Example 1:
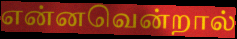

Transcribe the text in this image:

என்னவென்றால்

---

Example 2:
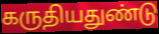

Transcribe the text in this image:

கருதியதுண்டு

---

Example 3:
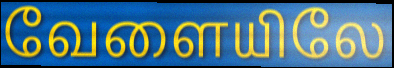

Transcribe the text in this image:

வேளையிலே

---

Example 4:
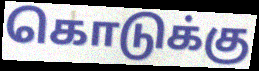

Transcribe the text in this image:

கொடுக்கு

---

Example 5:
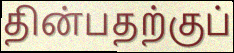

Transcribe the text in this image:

தின்பதற்குப்